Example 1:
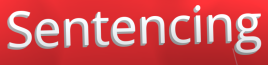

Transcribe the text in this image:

Sentencing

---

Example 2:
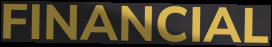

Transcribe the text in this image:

FINANCIAL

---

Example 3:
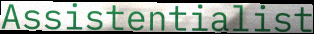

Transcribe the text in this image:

Assistentialist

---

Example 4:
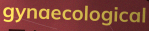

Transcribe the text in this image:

gynaecological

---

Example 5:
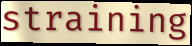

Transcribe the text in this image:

straining